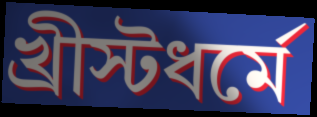
খ্রীস্টধর্মে